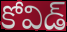
కోవిడ్